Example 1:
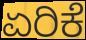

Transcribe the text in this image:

ಏರಿಕೆ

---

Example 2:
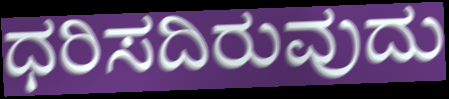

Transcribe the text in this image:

ಧರಿಸದಿರುವುದು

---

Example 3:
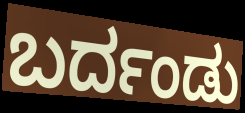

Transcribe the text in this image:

ಬರ್ದಂಡು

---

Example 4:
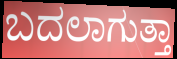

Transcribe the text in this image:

ಬದಲಾಗುತ್ತಾ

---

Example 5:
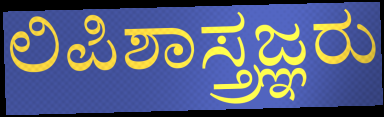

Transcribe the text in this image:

ಲಿಪಿಶಾಸ್ತ್ರಜ್ಞರು